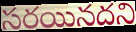
సరయినదని